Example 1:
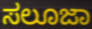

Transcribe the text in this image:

ಸಲೂಜಾ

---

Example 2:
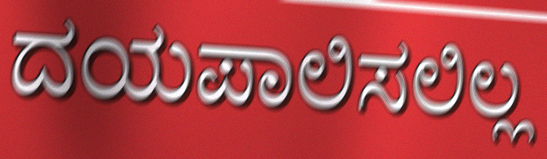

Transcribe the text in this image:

ದಯಪಾಲಿಸಲಿಲ್ಲ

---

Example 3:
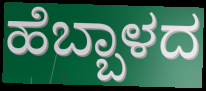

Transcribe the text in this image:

ಹೆಬ್ಬಾಳದ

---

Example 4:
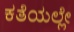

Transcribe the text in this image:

ಕತೆಯಲ್ಲೇ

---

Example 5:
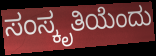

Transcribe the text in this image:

ಸಂಸ್ಕೃತಿಯೆಂದು